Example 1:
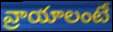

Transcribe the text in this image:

వ్రాయాలంటే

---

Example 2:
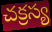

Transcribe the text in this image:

చక్రస్య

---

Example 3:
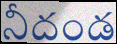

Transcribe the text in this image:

నీదండ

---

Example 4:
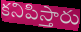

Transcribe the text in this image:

కనిపిస్తారు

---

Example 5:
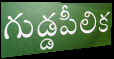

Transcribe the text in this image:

గుడ్డపీలిక